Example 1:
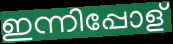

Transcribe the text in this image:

ഇന്നിപ്പോള്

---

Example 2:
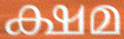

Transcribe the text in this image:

ക്ഷമ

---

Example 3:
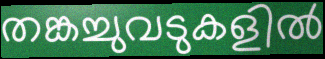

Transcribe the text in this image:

തങ്കച്ചുവടുകളിൽ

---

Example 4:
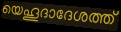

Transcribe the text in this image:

യെഹൂദാദേശത്ത്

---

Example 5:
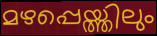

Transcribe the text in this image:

മഴപ്പെയ്ത്തിലും